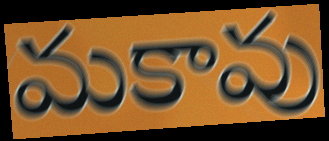
మకావు